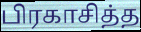
பிரகாசித்த